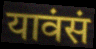
यावंसं